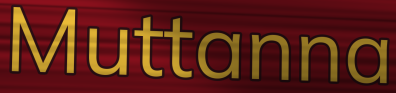
Muttanna